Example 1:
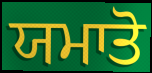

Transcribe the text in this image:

ਯਮਾਤੋ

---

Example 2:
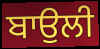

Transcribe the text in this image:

ਬਾਉਲੀ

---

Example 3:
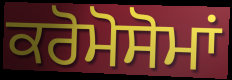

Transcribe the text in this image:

ਕਰੋਮੋਸੋਮਾਂ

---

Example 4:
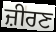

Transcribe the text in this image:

ਜ਼ੀਰਣ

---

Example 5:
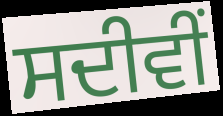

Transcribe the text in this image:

ਸਦੀਵੀਂ